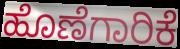
ಹೊಣೆಗಾರಿಕೆ